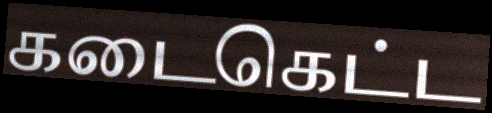
கடைகெட்ட